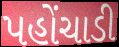
પહોંચાડી